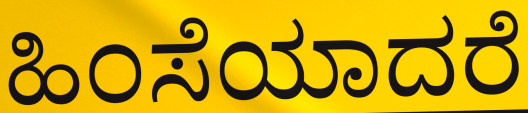
ಹಿಂಸೆಯಾದರೆ